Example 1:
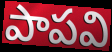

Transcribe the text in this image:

పాపవి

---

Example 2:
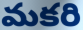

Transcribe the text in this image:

మకరి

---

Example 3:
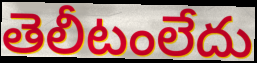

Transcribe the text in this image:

తెలీటంలేదు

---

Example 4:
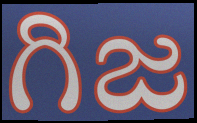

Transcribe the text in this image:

గిజ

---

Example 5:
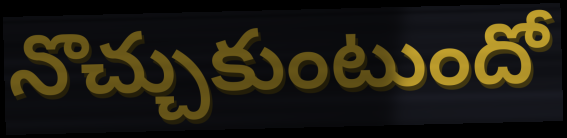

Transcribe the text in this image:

నొచ్చుకుంటుందో